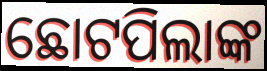
ଛୋଟପିଲାଙ୍କ